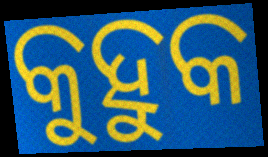
କୁହୁକ